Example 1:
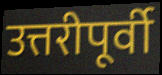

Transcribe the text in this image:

उत्तरीपूर्वी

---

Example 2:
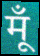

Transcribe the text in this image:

मूँ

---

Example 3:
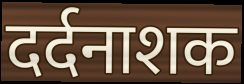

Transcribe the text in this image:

दर्दनाशक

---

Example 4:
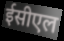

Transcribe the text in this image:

ईसीएल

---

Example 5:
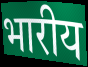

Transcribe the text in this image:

भारीय